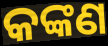
କଙ୍କଣ